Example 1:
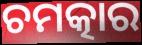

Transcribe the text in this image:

ଚମତ୍କାର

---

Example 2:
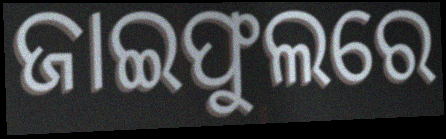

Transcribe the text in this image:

ଜାଇଫୁଲରେ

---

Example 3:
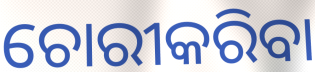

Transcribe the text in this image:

ଚୋରୀକରିବା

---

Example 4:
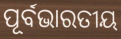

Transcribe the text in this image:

ପୂର୍ବଭାରତୀୟ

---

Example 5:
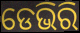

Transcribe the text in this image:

ଡେଭିରି